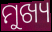
ମୁଖ୍ୟ